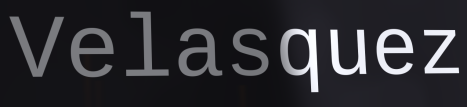
Velasquez